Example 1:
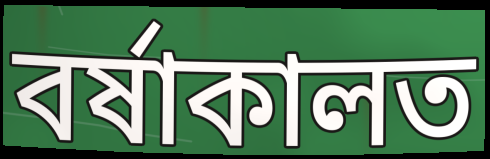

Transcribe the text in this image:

বৰ্ষাকালত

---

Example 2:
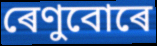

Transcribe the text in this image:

ৰেণুবোৰে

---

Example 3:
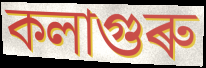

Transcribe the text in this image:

কলাগুৰু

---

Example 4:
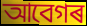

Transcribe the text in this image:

আবেগৰ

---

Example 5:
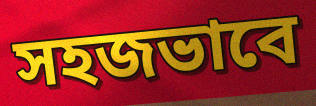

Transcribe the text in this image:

সহজভাবে